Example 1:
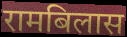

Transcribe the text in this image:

रामबिलास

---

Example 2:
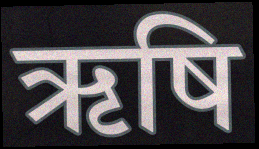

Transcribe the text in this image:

ॠषि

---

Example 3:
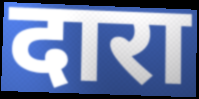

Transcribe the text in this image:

दारा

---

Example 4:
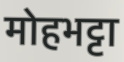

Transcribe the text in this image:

मोहभट्टा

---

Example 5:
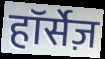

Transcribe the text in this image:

हॉर्सेज़